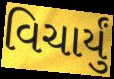
વિચાર્યું